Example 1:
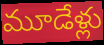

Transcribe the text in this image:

మూడేళ్లు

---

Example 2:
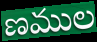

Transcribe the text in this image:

ణముల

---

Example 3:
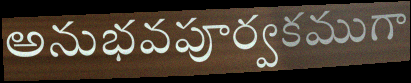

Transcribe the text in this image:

అనుభవపూర్వకముగా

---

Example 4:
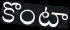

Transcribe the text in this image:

కొంటా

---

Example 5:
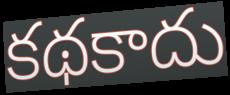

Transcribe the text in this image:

కథకాదు